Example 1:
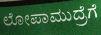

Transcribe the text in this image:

ಲೋಪಾಮುದ್ರೆಗೆ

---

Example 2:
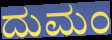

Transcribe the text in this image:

ದುಮಂ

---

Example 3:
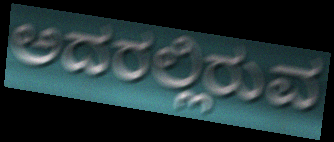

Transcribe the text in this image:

ಅದರಲ್ಲಿರುವ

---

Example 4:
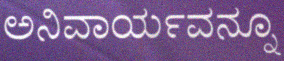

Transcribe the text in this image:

ಅನಿವಾರ್ಯವನ್ನೂ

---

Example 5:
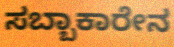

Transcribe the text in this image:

ಸಬ್ಬಾಕಾರೇನ